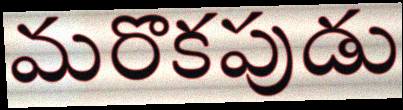
మరొకపుడు